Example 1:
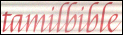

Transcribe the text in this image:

tamilbible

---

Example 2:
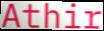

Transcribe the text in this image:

Athir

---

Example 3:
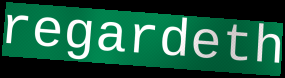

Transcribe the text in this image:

regardeth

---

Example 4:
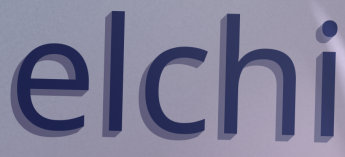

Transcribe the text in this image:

elchi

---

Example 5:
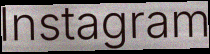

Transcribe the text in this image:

Instagram